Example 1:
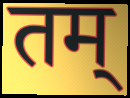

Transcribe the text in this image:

तम्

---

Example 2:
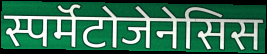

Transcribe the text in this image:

स्पर्मॅटोजेनेसिस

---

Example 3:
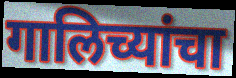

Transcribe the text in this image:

गालिच्यांचा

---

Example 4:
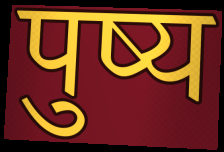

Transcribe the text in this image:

पुष्य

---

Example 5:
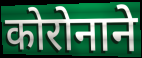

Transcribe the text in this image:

कोरोनाने